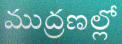
ముద్రణల్లో